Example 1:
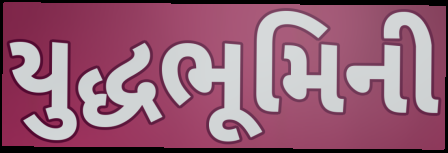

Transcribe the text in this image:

યુદ્ધભૂમિની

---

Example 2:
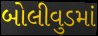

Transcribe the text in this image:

બોલીવુડમાં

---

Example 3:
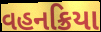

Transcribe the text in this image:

વહનક્રિયા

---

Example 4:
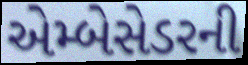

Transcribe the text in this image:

એમ્બેસેડરની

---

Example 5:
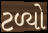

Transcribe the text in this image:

ટળ્યો